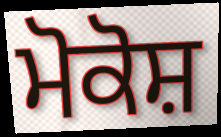
ਮੋਕੋਸ਼